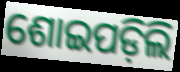
ଶୋଇପଡ଼ିଲି